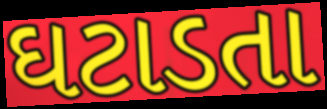
ઘટાડતા